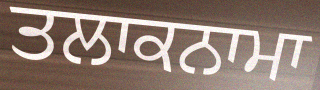
ਤਲਾਕਨਾਮਾ